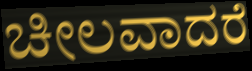
ಚೀಲವಾದರೆ